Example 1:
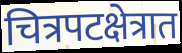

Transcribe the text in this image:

चित्रपटक्षेत्रात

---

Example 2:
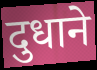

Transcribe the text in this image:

दुधाने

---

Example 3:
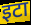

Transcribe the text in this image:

इटा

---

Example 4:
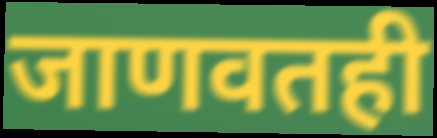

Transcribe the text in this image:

जाणवतही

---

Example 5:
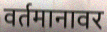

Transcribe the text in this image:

वर्तमानावर